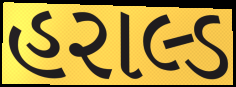
હરાલ્ડ